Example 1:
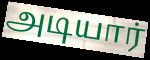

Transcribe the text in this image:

அடியார்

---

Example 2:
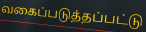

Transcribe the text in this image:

வகைப்படுத்தப்பட்டு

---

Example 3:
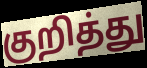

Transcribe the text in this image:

குறித்து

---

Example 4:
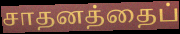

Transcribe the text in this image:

சாதனத்தைப்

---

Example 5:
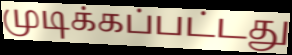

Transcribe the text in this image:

முடிக்கப்பட்டது